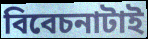
বিবেচনাটাই